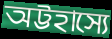
অট্টহাস্যে